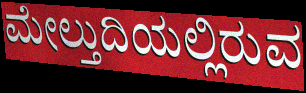
ಮೇಲ್ತುದಿಯಲ್ಲಿರುವ